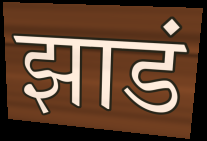
झाडं